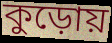
কুড়োয়